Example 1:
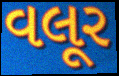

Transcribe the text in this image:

વલૂર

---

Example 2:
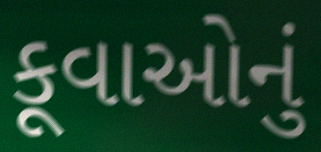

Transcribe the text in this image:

કૂવાઓનું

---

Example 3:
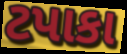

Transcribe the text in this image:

ટપાકા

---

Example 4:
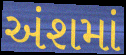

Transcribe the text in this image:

અંશમાં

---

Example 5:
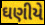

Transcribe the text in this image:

ઘણીયે